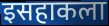
इसहाकला